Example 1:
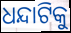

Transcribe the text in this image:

ଧନ୍ଦାଟିକୁ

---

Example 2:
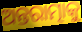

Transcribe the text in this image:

ଅନ୍ତରାତ୍ମାକୁ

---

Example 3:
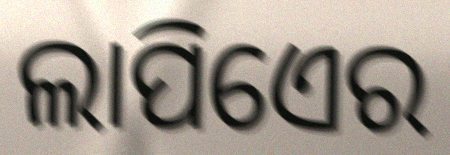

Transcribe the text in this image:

ଲାପିଏେର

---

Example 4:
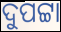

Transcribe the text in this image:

ଦୁପଟ୍ଟା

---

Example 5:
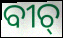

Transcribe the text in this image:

ବୀଚ୍